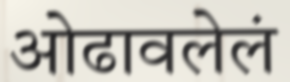
ओढावलेलं